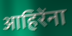
आहिरेंना